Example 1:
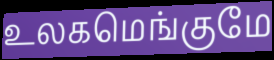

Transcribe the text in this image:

உலகமெங்குமே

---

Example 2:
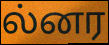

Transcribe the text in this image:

ல்னர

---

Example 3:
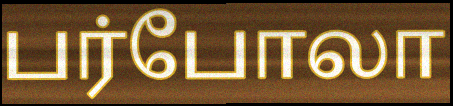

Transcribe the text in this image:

பர்போலா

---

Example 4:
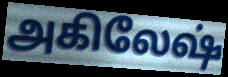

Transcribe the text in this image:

அகிலேஷ்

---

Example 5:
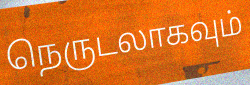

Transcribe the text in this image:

நெருடலாகவும்